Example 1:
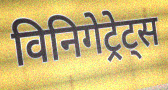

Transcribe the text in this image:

विनिगेट्रेट्स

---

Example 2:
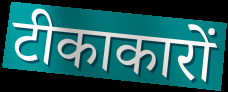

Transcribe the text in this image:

टीकाकारों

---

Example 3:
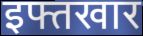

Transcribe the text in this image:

इफ्तखार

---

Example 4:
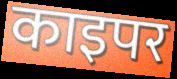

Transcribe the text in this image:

काइपर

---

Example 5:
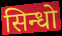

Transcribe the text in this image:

सिन्धो